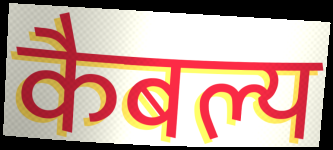
कैबल्य